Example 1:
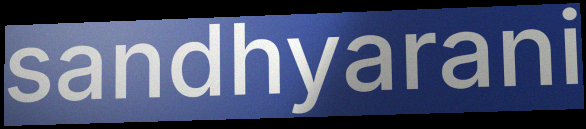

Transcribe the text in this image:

sandhyarani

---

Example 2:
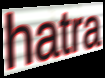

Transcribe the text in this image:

hatra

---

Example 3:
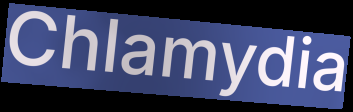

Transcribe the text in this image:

Chlamydia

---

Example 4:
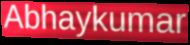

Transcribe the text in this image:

Abhaykumar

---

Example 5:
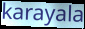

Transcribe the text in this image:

karayala